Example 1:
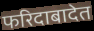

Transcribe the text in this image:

फरिदाबादेत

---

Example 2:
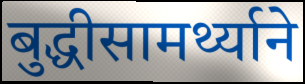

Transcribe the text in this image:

बुद्धीसामर्थ्याने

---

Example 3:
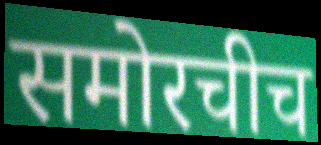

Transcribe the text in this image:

समोरचीच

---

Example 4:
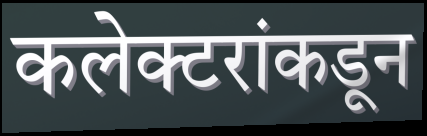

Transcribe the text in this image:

कलेक्टरांकडून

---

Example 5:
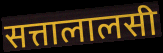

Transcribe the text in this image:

सत्तालालसी